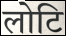
लोटि